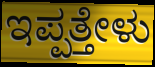
ಇಪ್ಪತ್ತೇಳು